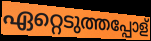
ഏറ്റെടുത്തപ്പോള്